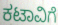
ಕಟಾವಿಗೆ